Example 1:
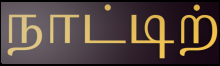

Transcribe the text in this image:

நாட்டிற்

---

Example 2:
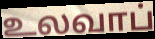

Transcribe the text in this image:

உலவாப்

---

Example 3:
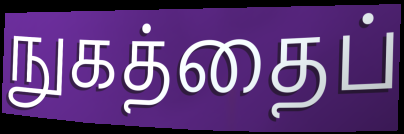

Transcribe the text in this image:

நுகத்தைப்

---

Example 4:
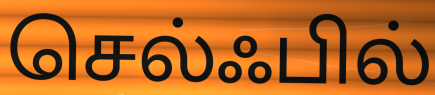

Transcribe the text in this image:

செல்ஃபில்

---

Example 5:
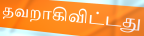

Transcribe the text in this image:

தவறாகிவிட்டது